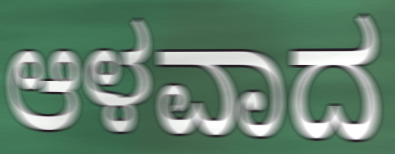
ಆಳವಾದ